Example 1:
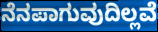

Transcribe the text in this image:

ನೆನಪಾಗುವುದಿಲ್ಲವೆ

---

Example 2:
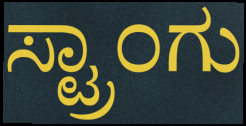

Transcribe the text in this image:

ಸ್ಟ್ರಾಂಗು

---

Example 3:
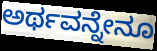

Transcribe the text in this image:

ಅರ್ಥವನ್ನೇನೂ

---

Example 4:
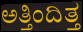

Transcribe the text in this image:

ಅತ್ತಿಂದಿತ್ತ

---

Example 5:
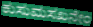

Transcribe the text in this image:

ಕುಸುಮಸಖನೇಂ